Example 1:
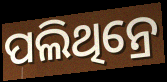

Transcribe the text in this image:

ପଲିଥିନ୍ରେ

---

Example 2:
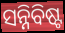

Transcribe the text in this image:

ସନ୍ନିବିଷ୍ଟ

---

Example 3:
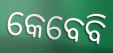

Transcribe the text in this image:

କେବେବି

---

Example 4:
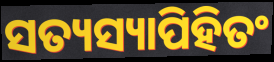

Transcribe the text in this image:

ସତ୍ୟସ୍ୟାପିହିତଂ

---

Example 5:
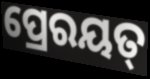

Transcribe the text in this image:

ପ୍ରେରୟତ୍